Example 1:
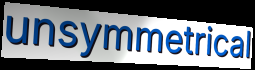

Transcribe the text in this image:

unsymmetrical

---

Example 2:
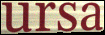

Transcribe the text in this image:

ursa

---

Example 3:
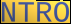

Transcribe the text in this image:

NTRO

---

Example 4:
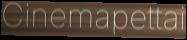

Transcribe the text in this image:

Cinemapettai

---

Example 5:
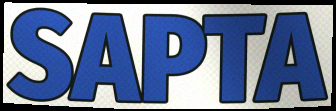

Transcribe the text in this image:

SAPTA